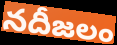
నదీజలం